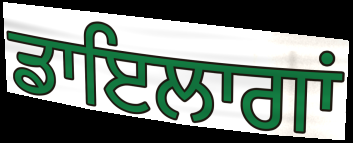
ਡਾਇਲਾਗਾਂ